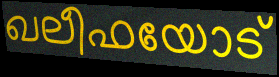
ഖലീഫയോട്